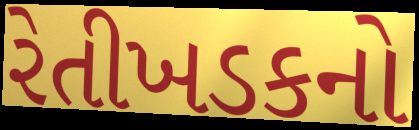
રેતીખડકનો